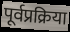
पूर्वप्रक्रिया